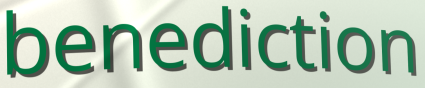
benediction